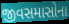
જીવસમાસોના